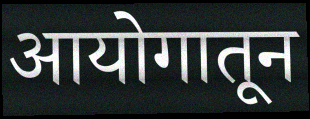
आयोगातून